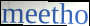
meetho